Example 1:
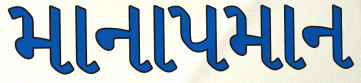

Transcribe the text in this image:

માનાપમાન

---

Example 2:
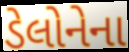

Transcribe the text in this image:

ડેલોનેના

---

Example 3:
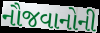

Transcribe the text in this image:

નૌજવાનોની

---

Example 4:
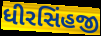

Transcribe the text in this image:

ધીરસિંહજી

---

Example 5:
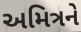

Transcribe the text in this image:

અમિત્રને